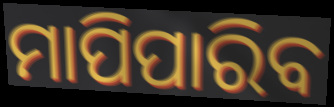
ମାପିପାରିବ